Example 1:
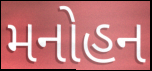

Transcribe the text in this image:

મનોહન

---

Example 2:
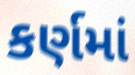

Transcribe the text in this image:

કર્ણમાં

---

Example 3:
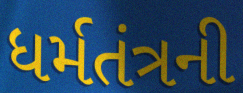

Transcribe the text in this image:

ધર્મતંત્રની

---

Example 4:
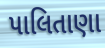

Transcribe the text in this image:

પાલિતાણા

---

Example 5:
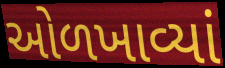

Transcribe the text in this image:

ઓળખાવ્યાં